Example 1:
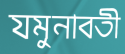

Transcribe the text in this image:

যমুনাবতী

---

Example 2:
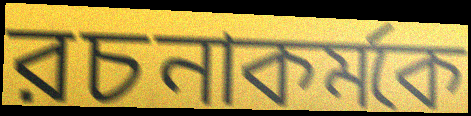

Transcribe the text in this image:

রচনাকর্মকে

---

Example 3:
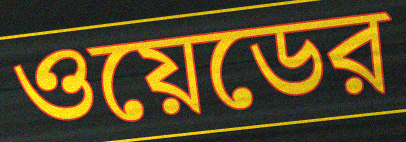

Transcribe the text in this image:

ওয়েডের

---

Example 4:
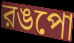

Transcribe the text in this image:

রঙপো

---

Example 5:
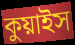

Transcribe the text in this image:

কুয়াইস